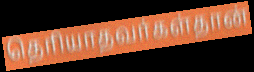
தெரியாதவர்கள்தான்